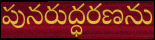
పునరుద్ధరణను